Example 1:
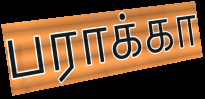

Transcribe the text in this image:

பராக்கா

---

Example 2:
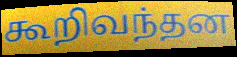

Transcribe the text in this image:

கூறிவந்தன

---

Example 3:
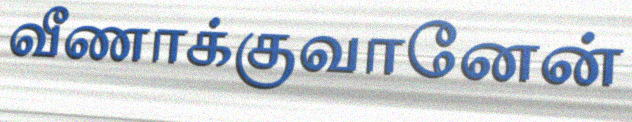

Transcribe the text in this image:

வீணாக்குவானேன்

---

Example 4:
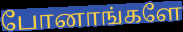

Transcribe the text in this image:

போனாங்களே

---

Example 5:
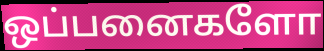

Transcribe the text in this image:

ஒப்பனைகளோ